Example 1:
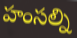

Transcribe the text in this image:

హంసల్ని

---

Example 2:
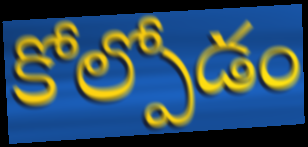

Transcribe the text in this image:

కోల్పోడం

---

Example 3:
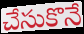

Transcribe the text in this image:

చేసుకొనే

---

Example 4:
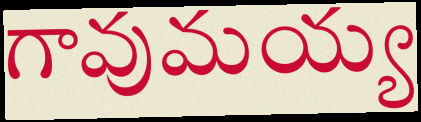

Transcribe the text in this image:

గావుమయ్య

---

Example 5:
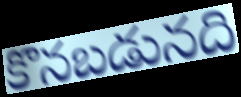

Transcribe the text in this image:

కొనబడునది